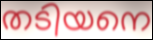
തടിയനെ